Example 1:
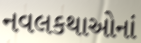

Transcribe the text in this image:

નવલકથાઓનાં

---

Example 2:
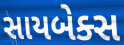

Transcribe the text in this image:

સાયબેક્સ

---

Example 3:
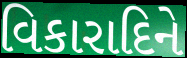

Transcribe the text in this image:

વિકારાદિને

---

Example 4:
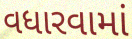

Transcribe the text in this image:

વધારવામાં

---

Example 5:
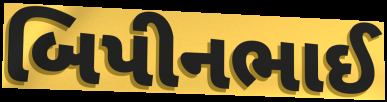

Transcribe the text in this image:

બિપીનભાઈ